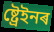
ষ্ট্ৰেইনৰ